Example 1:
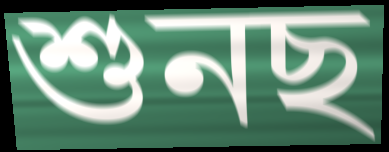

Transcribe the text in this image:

শুনছ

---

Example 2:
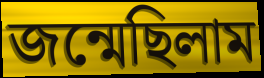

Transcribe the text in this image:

জন্মেছিলাম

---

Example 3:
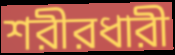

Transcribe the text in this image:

শরীরধারী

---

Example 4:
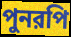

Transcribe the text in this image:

পুনরপি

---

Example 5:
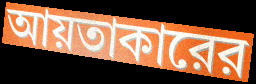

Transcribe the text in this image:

আয়তাকারের